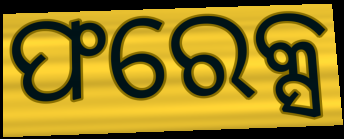
ଫରେକ୍ସ